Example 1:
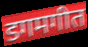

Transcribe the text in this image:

डगमगीत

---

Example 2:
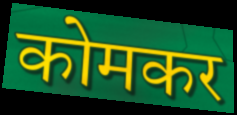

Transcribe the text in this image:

कोमकर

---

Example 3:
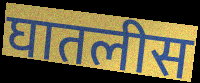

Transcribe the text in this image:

घातलीस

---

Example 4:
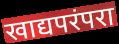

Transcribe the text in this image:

खाद्यपरंपरा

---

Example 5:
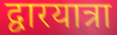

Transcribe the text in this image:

द्वारयात्रा